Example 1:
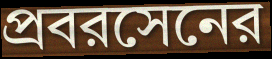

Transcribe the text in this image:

প্রবরসেনের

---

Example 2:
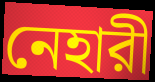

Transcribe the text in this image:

নেহারী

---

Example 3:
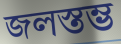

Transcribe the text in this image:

জলস্তম্ভ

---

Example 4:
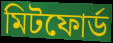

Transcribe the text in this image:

মিটফোর্ড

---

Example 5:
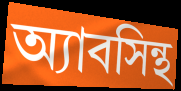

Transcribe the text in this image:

অ্যাবসিন্থ